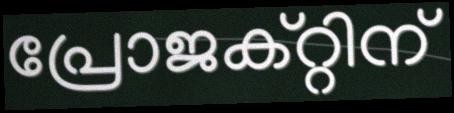
പ്രോജക്റ്റിന്